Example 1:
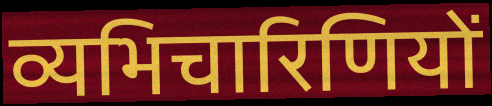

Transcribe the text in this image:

व्यभिचारिणियों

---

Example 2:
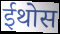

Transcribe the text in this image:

ईथोस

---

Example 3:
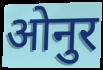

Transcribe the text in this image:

ओनुर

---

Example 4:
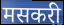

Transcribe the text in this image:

मसकरी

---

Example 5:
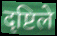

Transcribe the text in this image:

दृष्टिले